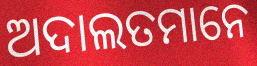
ଅଦାଲତମାନେ